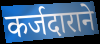
कर्जदाराने